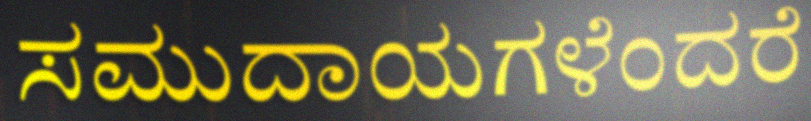
ಸಮುದಾಯಗಳೆಂದರೆ